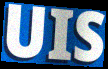
UIS